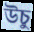
উচু